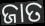
ଜାତ